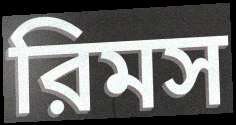
রিমস